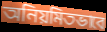
অনিয়মিতভাবে